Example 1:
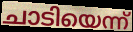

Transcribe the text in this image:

ചാടിയെന്ന്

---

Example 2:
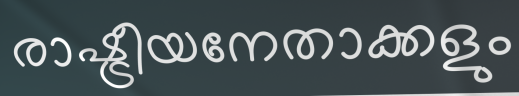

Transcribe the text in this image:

രാഷ്ട്രീയനേതാക്കളും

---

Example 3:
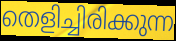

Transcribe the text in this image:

തെളിച്ചിരിക്കുന്ന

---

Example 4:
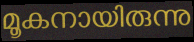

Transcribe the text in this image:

മൂകനായിരുന്നു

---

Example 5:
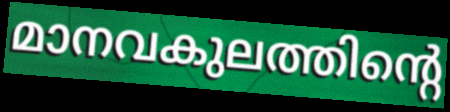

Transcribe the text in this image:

മാനവകുലത്തിന്റെ